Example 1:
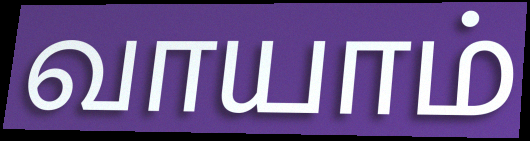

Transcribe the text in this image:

வாயாம்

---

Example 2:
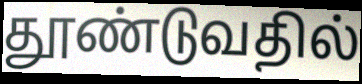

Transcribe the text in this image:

தூண்டுவதில்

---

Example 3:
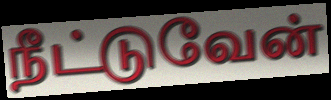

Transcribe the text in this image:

நீட்டுவேன்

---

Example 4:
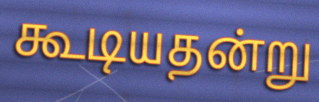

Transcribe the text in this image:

கூடியதன்று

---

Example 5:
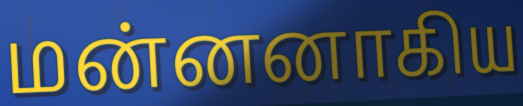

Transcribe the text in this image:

மன்னனாகிய